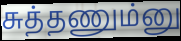
சுத்தணும்னு